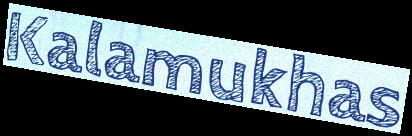
Kalamukhas